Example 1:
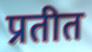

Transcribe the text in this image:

प्रतीत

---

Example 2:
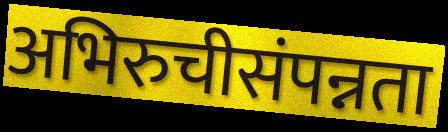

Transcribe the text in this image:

अभिरुचीसंपन्नता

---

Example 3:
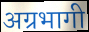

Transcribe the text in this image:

अग्रभागी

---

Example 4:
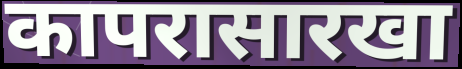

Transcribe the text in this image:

कापरासारखा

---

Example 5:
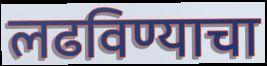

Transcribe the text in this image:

लढविण्याचा